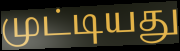
முட்டியது